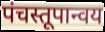
पंचस्तूपान्वय